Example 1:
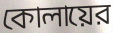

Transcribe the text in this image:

কোলায়ের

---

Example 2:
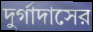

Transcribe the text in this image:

দুর্গাদাসের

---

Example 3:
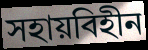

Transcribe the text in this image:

সহায়বিহীন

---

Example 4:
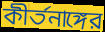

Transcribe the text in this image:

কীর্তনাঙ্গের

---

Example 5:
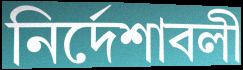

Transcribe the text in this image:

নির্দেশাবলী